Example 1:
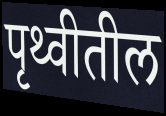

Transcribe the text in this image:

पृथ्वीतील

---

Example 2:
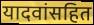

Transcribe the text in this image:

यादवांसहित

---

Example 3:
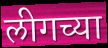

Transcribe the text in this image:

लीगच्या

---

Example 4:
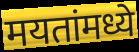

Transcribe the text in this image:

मयतांमध्ये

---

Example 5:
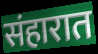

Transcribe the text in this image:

संहारात